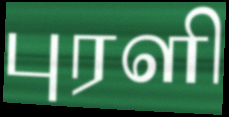
புரளி